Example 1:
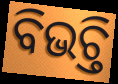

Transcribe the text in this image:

ବିଭଚ୍ତି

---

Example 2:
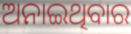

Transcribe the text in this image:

ଅନାଇଥିବାର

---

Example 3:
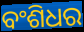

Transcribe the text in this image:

ବଂଶିଧର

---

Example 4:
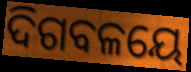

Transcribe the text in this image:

ଦିଗବଳୟେ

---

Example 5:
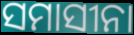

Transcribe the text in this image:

ସମାସୀନା